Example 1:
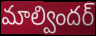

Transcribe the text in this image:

మాల్విందర్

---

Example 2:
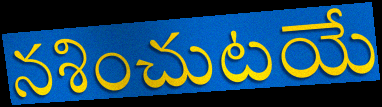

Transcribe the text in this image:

నశించుటయే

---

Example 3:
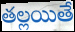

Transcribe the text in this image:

తల్లయితే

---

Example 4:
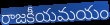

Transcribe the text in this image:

రాజకీయమయం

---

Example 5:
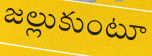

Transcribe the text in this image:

జల్లుకుంటూ